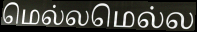
மெல்லமெல்ல